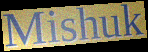
Mishuk